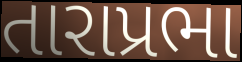
તારાપ્રભા